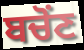
ਬਚੋਂਣ